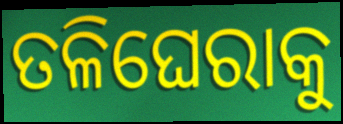
ତଳିଘେରାକୁ